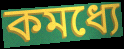
কমধ্যে